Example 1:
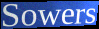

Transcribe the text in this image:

Sowers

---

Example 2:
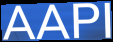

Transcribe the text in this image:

AAPI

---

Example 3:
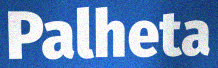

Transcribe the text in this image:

Palheta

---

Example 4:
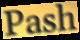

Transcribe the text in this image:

Pash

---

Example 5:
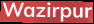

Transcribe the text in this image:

Wazirpur